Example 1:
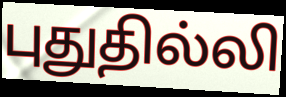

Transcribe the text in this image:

புதுதில்லி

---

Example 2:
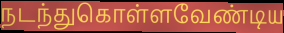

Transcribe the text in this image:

நடந்துகொள்ளவேண்டிய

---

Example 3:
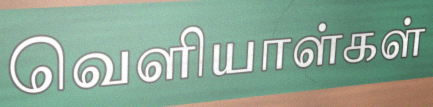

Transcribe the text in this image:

வெளியாள்கள்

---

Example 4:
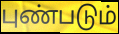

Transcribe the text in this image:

புண்படும்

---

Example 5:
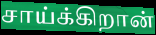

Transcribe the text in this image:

சாய்க்கிறான்